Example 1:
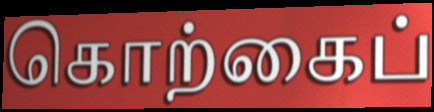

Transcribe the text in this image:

கொற்கைப்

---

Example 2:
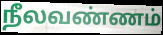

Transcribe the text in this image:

நீலவண்ணம்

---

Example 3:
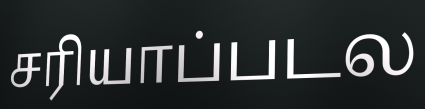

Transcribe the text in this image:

சரியாப்படல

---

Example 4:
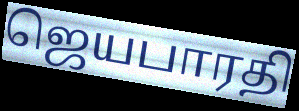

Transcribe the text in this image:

ஜெயபாரதி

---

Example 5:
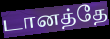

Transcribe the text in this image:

டானத்தே